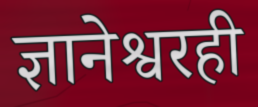
ज्ञानेश्वरही